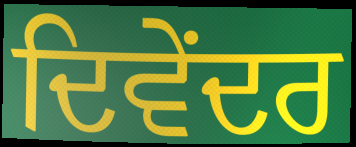
ਦਿਵੇਂਦਰ